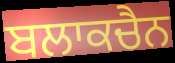
ਬਲਾਕਚੈਨ